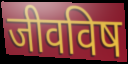
जीवविष